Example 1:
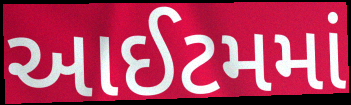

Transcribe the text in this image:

આઈટમમાં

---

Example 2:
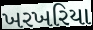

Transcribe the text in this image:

ખરખરિયા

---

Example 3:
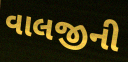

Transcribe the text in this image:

વાલજીની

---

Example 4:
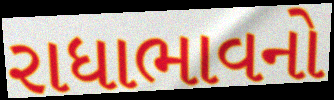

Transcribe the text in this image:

રાધાભાવનો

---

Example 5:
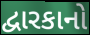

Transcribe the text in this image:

દ્વારકાનો